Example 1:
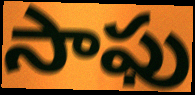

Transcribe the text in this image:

సాఫు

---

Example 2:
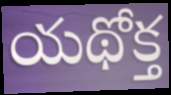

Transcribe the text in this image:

యథోక్త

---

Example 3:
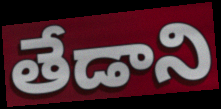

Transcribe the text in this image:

తేడాని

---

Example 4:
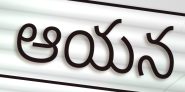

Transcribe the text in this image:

ఆయన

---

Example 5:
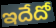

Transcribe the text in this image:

ఇదేదో